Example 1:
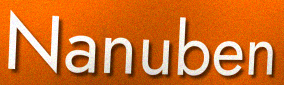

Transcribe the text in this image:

Nanuben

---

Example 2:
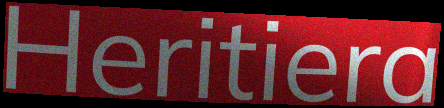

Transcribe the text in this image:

Heritiera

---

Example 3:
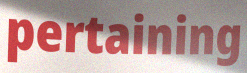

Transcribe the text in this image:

pertaining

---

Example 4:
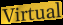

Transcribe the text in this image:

Virtual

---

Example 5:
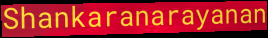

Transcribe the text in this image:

Shankaranarayanan